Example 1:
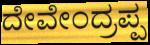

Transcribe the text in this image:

ದೇವೇಂದ್ರಪ್ಪ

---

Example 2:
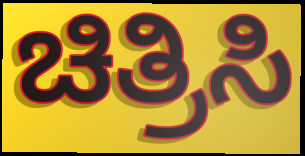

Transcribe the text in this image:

ಚಿತ್ರಿಸಿ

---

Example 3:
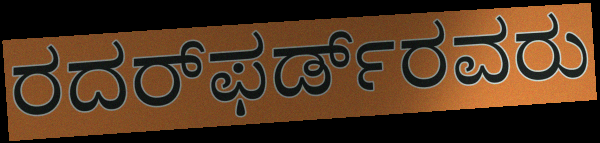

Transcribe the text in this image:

ರದರ್‌ಫರ್ಡ್‌ರವರು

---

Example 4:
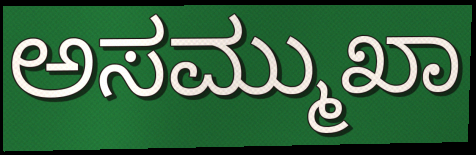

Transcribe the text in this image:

ಅಸಮ್ಮುಖಾ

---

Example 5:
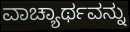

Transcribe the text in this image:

ವಾಚ್ಯಾರ್ಥವನ್ನು